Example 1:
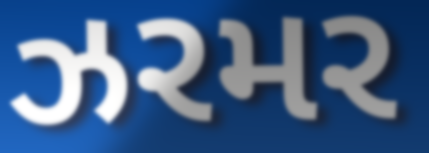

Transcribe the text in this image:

ઝરમર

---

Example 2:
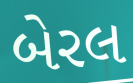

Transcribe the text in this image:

બેરલ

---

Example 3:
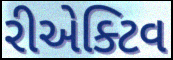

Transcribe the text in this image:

રીએક્ટિવ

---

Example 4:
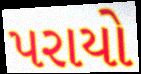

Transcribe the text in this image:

પરાયો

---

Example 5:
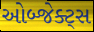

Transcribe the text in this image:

ઓબ્જેક્ટ્સ